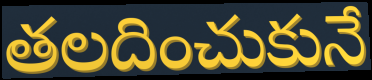
తలదించుకునే